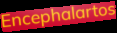
Encephalartos